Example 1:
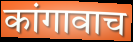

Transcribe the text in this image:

कांगावाच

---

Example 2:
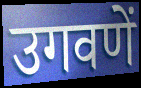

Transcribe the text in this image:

उगवणें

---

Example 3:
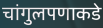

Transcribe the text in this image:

चांगुलपणाकडे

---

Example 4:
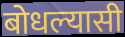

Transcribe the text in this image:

बोधल्यासी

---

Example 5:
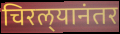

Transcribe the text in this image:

चिरल्यानंतर